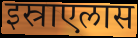
इस्राएलास